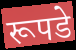
रूपडे